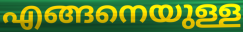
എങ്ങനെയുള്ള